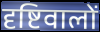
दृष्टिवालों